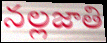
నల్లజాతి